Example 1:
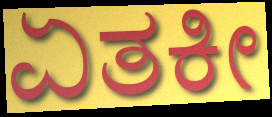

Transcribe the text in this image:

ಏತಕೀ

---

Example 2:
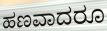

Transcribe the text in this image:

ಹಣವಾದರೂ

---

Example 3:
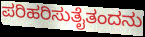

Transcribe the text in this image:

ಪರಿಹರಿಸುತೈತಂದನು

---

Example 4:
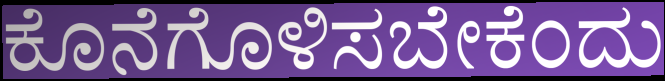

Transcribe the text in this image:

ಕೊನೆಗೊಳಿಸಬೇಕೆಂದು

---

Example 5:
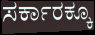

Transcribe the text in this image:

ಸರ್ಕಾರಕ್ಕೂ